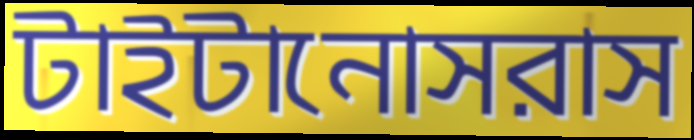
টাইটানোসরাস